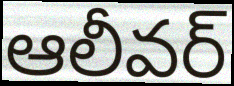
ఆలీవర్